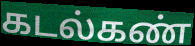
கடல்கண்